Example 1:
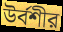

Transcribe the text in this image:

উর্বশীর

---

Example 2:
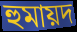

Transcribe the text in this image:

হুমায়দ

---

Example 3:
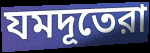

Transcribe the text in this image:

যমদূতেরা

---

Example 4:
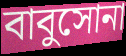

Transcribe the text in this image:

বাবুসোনা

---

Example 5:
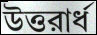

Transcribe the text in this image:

উত্তরার্ধ